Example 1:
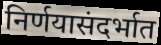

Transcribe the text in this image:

निर्णयासंदर्भात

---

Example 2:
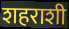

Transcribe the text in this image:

शहराशी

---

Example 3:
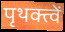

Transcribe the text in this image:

पृथक्त्वें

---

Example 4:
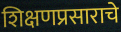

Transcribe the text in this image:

शिक्षणप्रसाराचे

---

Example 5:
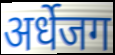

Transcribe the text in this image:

अर्धेजग